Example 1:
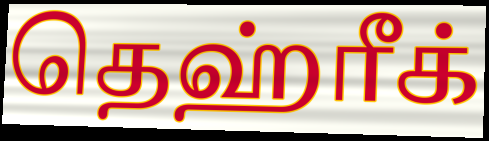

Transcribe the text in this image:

தெஹ்ரீக்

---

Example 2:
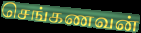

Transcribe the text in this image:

செங்கணவன்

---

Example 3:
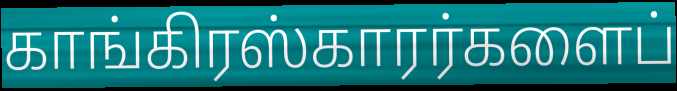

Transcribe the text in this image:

காங்கிரஸ்காரர்களைப்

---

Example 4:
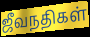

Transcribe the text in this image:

ஜீவநதிகள்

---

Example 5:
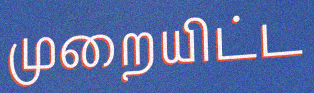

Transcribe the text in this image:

முறையிட்ட